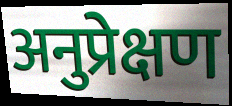
अनुप्रेक्षण